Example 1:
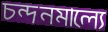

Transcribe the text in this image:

চন্দনমাল্যে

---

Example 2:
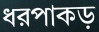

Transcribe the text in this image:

ধরপাকড়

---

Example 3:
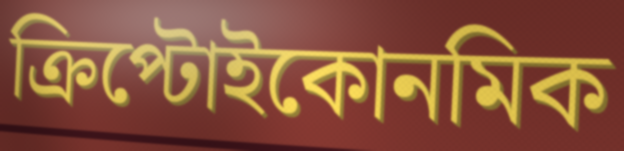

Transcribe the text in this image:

ক্রিপ্টোইকোনমিক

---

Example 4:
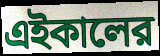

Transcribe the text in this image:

এইকালের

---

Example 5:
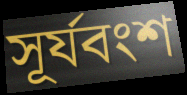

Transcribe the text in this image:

সূর্যবংশ